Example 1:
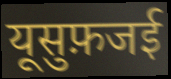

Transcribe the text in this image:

यूसुफ़जई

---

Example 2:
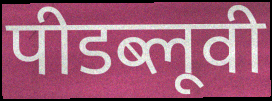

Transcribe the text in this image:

पीडब्लूवी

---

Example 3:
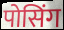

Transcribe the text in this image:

पोसिंग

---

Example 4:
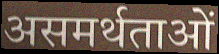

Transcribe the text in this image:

असमर्थताओं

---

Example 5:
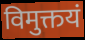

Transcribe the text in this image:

विमुक्तयं